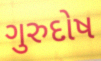
ગુરુદોષ